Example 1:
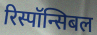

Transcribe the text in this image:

रिस्पॉन्सिबल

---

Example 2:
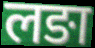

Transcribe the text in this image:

लङा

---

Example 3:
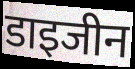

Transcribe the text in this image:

डाइजीन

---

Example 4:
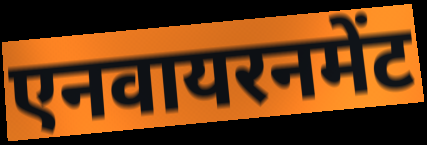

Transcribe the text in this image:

एनवायरनमेंट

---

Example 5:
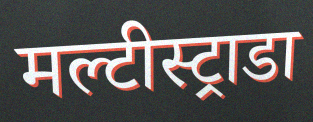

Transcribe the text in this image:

मल्टीस्ट्राडा